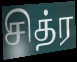
சித்ர